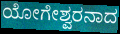
ಯೋಗೇಶ್ವರನಾದ